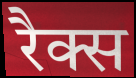
रैक्स